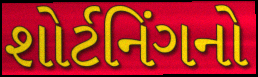
શોર્ટનિંગનો